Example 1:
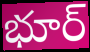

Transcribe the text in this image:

భూర్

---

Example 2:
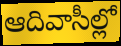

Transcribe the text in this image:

ఆదివాసీల్లో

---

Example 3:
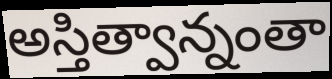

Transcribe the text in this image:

అస్తిత్వాన్నంతా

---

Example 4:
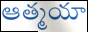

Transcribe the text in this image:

ఆత్మయా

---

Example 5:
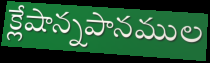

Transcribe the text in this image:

క్లేషాన్నపానముల